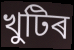
খুটিৰ